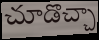
చూడొచ్చా